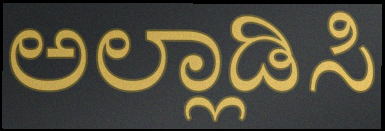
ಅಲ್ಲಾಡಿಸಿ